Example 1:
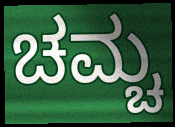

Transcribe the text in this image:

ಚಮ್ಚ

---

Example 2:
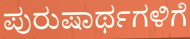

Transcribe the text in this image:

ಪುರುಷಾರ್ಥಗಳಿಗೆ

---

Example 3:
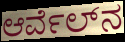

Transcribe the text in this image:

ಆರ್ವೆಲ್‍ನ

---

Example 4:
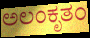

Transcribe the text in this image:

ಅಲಂಕೃತಂ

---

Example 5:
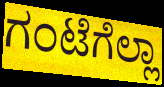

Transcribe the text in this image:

ಗಂಟೆಗೆಲ್ಲಾ